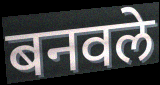
बनवले